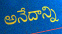
అనేదాన్ని